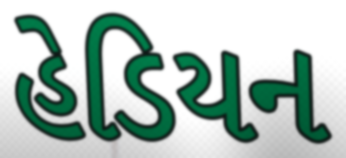
હેડિયન